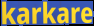
karkare